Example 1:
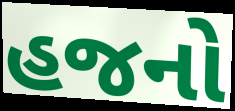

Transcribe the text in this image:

હજનો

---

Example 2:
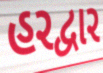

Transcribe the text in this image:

હરદ્વાર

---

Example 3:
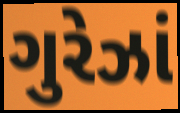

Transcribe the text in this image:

ગુરેઝાં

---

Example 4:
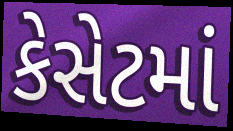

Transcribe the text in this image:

કેસેટમાં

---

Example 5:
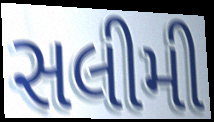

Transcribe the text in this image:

સલીમી